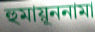
হুমায়ূননামা